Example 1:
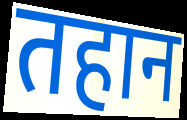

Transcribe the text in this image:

तहान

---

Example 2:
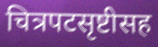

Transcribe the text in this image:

चित्रपटसृष्टीसह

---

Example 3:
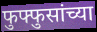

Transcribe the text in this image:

फुफ्फुसांच्या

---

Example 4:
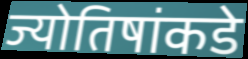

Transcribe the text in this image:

ज्योतिषांकडे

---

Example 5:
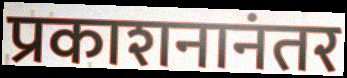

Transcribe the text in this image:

प्रकाशनानंतर